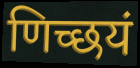
णिच्छयं